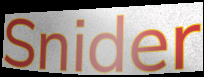
Snider